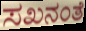
ಸಖನಂತೆ